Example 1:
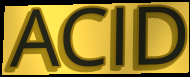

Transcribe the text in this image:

ACID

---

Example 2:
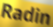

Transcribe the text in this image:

Radin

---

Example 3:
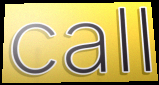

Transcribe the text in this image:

call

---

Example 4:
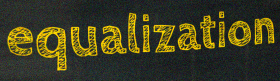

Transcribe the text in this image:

equalization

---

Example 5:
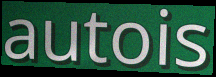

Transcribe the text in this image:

autois